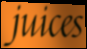
juices